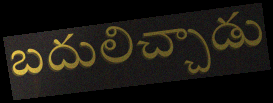
బదులిచ్చాడు